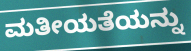
ಮತೀಯತೆಯನ್ನು